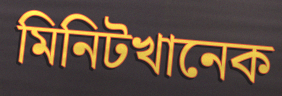
মিনিটখানেক